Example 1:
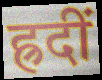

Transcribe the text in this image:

ह्रदीं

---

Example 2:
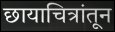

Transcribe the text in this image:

छायाचित्रांतून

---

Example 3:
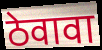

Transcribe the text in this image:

ठेवावा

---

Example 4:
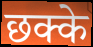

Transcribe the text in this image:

छक्के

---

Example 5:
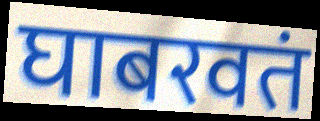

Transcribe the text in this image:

घाबरवतं